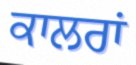
ਕਾਲਰਾਂ